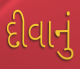
દીવાનું